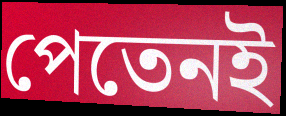
পেতেনই